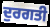
ਦੁਰਗਤੀ